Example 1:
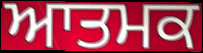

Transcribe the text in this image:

ਆਤਮਕ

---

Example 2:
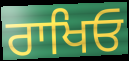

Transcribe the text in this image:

ਰਾਖਿਓ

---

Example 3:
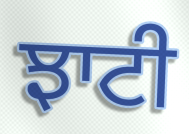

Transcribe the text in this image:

ਝਾਟੀ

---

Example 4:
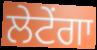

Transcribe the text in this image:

ਲੇਟੇਂਗਾ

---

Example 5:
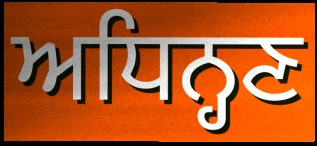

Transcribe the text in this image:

ਅਧਿਨ੍ਹਣ